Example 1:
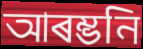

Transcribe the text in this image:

আৰম্ভনি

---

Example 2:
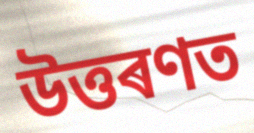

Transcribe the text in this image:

উত্তৰণত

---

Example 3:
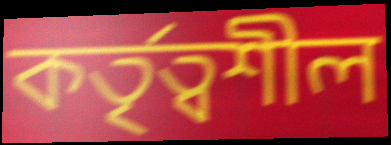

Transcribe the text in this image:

কৰ্তৃত্বশীল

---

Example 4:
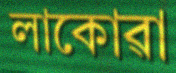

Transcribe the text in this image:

লাকোৱা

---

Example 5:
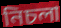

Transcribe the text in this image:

নিচলা